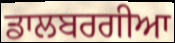
ਡਾਲਬਰਗੀਆ